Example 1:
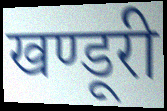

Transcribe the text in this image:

खण्डूरी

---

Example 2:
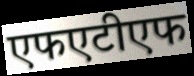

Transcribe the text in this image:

एफएटीएफ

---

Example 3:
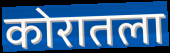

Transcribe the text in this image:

कोरातला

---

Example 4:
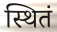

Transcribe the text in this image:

स्थितं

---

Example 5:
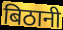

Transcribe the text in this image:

बिठानी